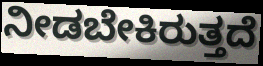
ನೀಡಬೇಕಿರುತ್ತದೆ